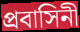
প্রবাসিনী